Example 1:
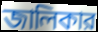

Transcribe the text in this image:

জালিকার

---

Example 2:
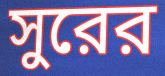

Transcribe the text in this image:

সুরের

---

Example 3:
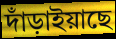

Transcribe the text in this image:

দাঁড়াইয়াছে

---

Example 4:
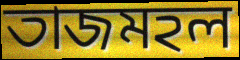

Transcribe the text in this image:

তাজমহল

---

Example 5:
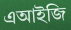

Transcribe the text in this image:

এআইজি